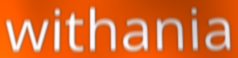
withania